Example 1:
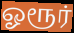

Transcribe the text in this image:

ஓரூர்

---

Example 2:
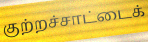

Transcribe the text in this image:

குற்றச்சாட்டைக்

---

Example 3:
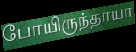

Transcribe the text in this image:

போயிருந்தாயா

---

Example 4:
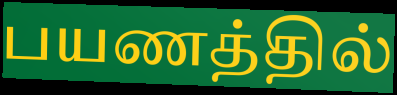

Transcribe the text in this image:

பயணத்தில்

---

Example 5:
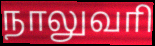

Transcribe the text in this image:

நாலுவரி